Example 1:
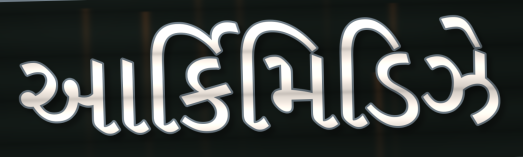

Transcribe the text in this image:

આર્કિમિડિઝે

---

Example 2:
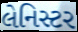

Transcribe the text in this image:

લેનિસ્ટર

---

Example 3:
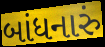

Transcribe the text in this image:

બાંધનારું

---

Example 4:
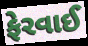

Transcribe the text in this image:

ફેરવાઈ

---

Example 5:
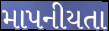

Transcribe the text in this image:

માપનીયતા